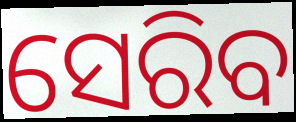
ସେରିବ